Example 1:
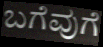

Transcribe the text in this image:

ಬಗೆವುಗೆ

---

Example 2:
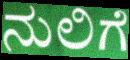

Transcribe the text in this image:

ನುಲಿಗೆ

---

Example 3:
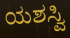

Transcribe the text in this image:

ಯಶಸ್ವಿ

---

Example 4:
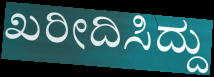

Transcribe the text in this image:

ಖರೀದಿಸಿದ್ದು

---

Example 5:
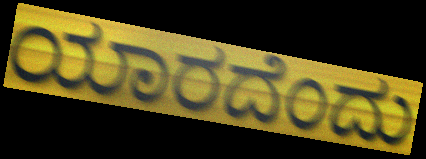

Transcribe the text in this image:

ಯಾರದೆಂದು